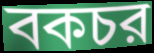
বকচর